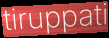
tiruppati